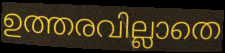
ഉത്തരവില്ലാതെ